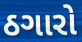
ઠગારો